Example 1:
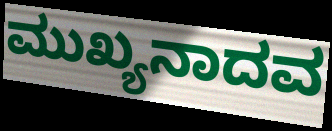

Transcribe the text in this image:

ಮುಖ್ಯನಾದವ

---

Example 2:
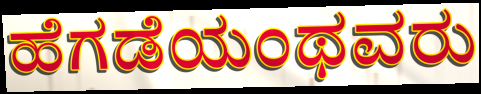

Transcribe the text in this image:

ಹೆಗಡೆಯಂಥವರು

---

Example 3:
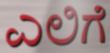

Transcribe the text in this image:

ಎಲಿಗೆ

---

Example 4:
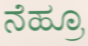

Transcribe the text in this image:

ನೆಹ್ರೂ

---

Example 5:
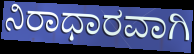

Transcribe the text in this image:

ನಿರಾಧಾರವಾಗಿ